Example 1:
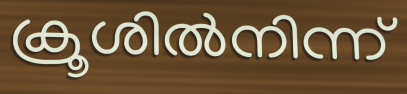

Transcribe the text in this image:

ക്രൂശിൽനിന്ന്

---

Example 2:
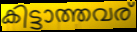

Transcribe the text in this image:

കിട്ടാത്തവര്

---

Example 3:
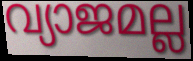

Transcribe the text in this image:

വ്യാജമല്ല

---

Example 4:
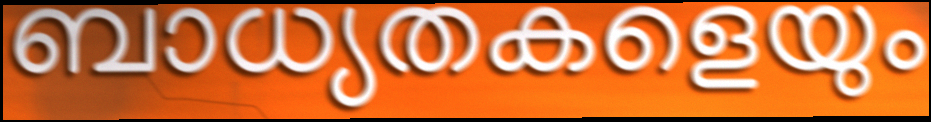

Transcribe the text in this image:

ബാധ്യതകളെയും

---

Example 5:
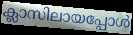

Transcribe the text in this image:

ക്ലാസിലായപ്പോൾ